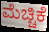
ಮೆಚ್ಚಿಕೆ